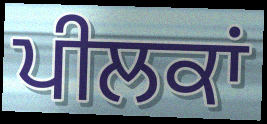
ਪੀਲਕਾਂ